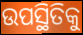
ଉପସ୍ଥିତିକୁ